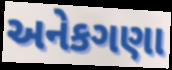
અનેકગણા